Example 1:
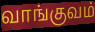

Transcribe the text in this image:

வாங்குவம்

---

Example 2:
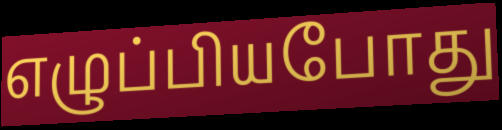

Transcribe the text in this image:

எழுப்பியபோது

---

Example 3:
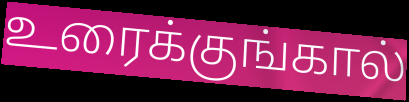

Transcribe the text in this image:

உரைக்குங்கால்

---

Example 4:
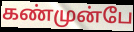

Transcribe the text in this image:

கண்முன்பே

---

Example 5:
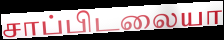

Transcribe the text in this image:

சாப்பிடலையா